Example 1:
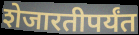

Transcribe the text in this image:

शेजारतीपर्यंत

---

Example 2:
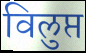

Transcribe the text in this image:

विलुप्त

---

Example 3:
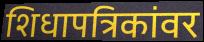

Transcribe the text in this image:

शिधापत्रिकांवर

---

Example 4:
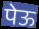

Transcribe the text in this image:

पेऊ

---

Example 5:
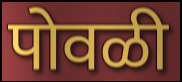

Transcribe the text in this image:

पोवळी